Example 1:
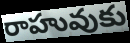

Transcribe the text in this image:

రాహువుకు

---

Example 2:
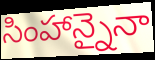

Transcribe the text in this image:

సింహాన్నైనా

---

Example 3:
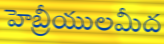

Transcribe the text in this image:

హెబ్రీయులమీద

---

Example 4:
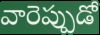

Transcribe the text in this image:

వారెప్పుడో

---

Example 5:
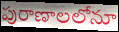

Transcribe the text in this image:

పురాణాలలోనూ